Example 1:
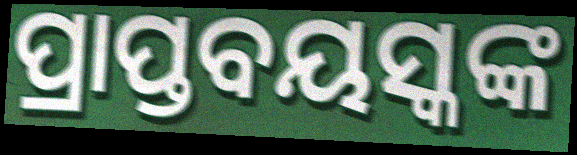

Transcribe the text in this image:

ପ୍ରାପ୍ତବୟସ୍କଙ୍କ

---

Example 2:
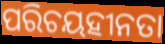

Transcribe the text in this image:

ପରିଚୟହୀନତା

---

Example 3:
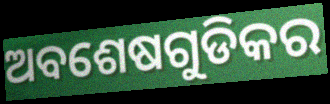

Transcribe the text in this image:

ଅବଶେଷଗୁଡିକର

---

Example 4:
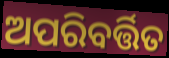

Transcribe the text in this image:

ଅପରିବର୍ତ୍ତିତ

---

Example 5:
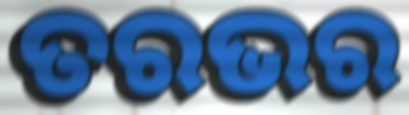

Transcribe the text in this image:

ତରଭର